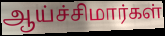
ஆய்ச்சிமார்கள்